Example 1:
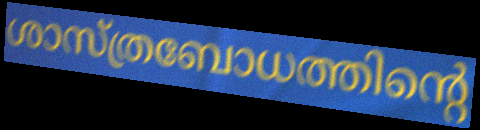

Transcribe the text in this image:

ശാസ്ത്രബോധത്തിന്റെ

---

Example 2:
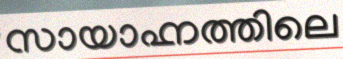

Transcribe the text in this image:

സായാഹ്നത്തിലെ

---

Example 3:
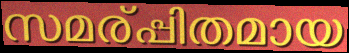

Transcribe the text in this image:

സമര്പ്പിതമായ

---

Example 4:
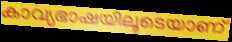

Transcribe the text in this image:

കാവ്യഭാഷയിലൂടെയാണ്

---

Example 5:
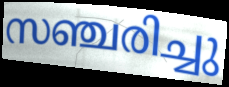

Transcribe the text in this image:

സഞ്ചരിച്ചു